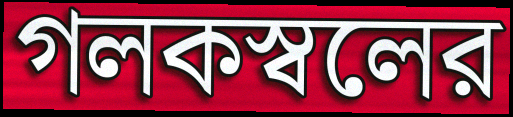
গলকস্বলের